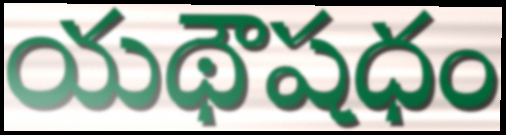
యథౌషధం